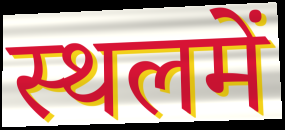
स्थलमें